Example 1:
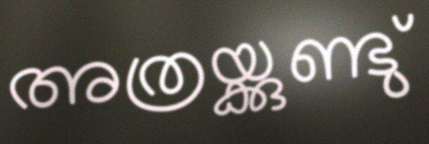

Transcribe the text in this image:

അത്രയ്ക്കുണ്ടു്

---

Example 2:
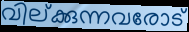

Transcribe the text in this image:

വില്ക്കുന്നവരോട്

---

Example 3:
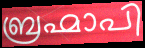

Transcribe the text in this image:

ബ്രഹ്മാപി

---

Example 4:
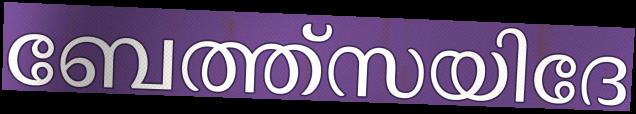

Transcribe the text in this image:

ബേത്ത്സയിദേ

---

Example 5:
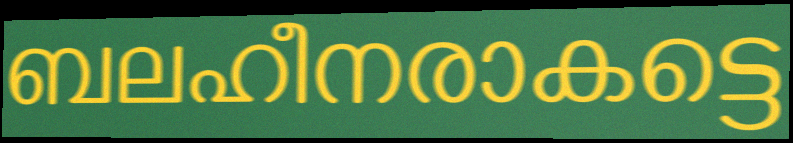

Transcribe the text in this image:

ബലഹീനരാകട്ടെ